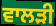
ਵਾਲੜੀ